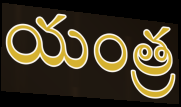
యంత్ర